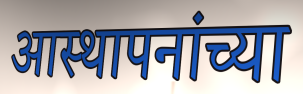
आस्थापनांच्या